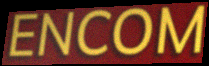
ENCOM